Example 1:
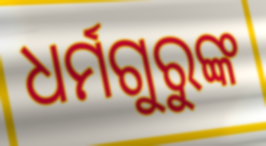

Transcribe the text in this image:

ଧର୍ମଗୁରୁଙ୍କ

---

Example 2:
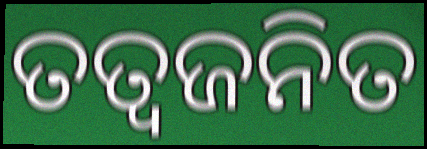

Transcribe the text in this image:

ତତ୍ଵଜନିତ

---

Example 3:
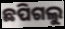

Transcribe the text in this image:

ଛପିଗଲୁ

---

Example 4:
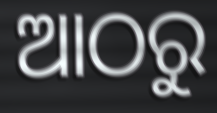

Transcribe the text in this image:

ଆଠରୁ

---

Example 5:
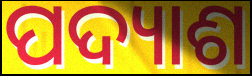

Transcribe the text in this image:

ପଦ୍ୟାଶ